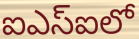
ఐఎస్ఐలో